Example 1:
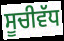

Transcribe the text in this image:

ਸੂਚੀਵੱਧ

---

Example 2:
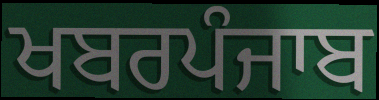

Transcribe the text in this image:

ਖਬਰਪੰਜਾਬ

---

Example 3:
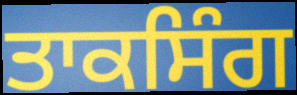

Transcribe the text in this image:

ਤਾਕਸਿੰਗ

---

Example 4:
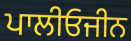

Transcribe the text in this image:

ਪਾਲੀਓਜੀਨ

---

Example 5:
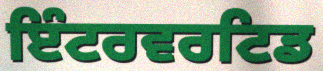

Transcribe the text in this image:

ਇੰਟਰਵਰਟਿਡ